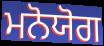
ਮਨੋਯੋਗ